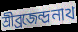
শ্রীব্রজেন্দ্রনাথ